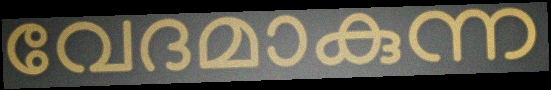
വേദമാകുന്ന